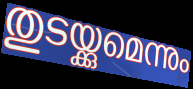
തുടയ്ക്കുമെന്നും